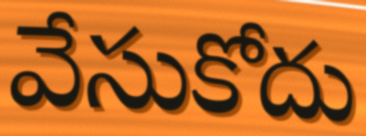
వేసుకోదు